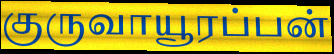
குருவாயூரப்பன்